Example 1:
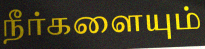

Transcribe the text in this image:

நீர்களையும்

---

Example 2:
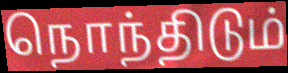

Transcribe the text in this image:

நொந்திடும்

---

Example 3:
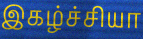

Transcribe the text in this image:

இகழ்ச்சியா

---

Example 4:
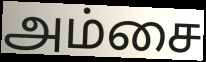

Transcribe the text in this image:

அம்சை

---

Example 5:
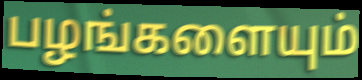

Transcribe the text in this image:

பழங்களையும்